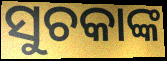
ସୁଚକାଙ୍କ